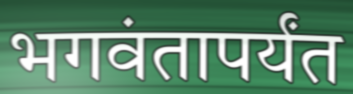
भगवंतापर्यंत